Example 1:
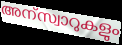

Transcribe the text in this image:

അന്സ്വാറുകളും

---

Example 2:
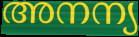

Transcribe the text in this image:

അനന്യ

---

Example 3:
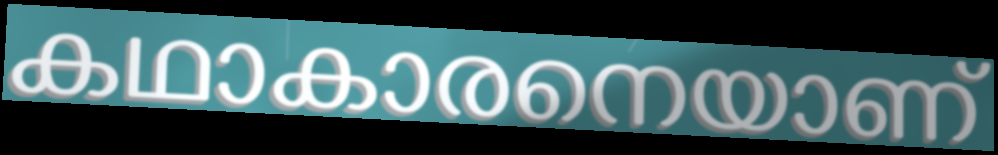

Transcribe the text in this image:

കഥാകാരനെയാണ്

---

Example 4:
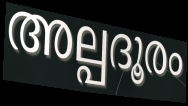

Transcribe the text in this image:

അല്പദൂരം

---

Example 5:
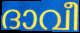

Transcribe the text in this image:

ദാവീ